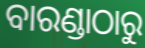
ବାରଣ୍ଡାଠାରୁ